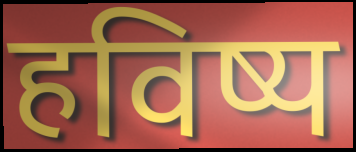
हविष्य